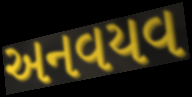
અનવયવ